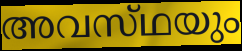
അവസ്‌ഥയും